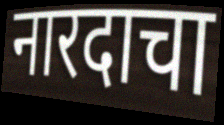
नारदाचा